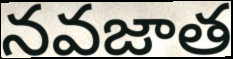
నవజాత